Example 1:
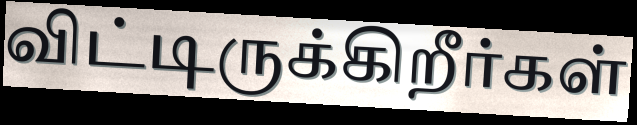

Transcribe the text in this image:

விட்டிருக்கிறீர்கள்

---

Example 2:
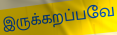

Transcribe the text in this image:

இருக்கறப்பவே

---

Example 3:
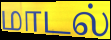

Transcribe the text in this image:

மாடல்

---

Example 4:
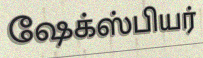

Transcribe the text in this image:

ஷேக்ஸ்பியர்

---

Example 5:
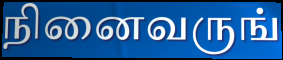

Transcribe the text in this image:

நினைவருங்